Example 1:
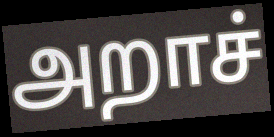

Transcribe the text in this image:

அறாச்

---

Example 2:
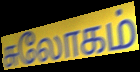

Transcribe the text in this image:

சுலோகம்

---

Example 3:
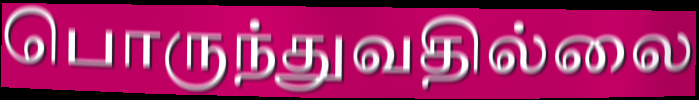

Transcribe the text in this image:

பொருந்துவதில்லை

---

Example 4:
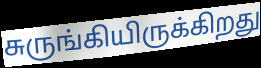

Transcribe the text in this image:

சுருங்கியிருக்கிறது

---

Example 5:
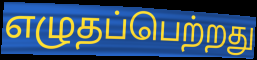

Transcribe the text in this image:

எழுதப்பெற்றது